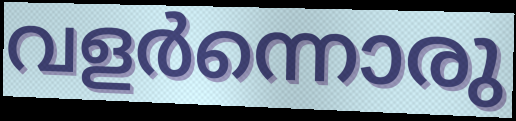
വളർന്നൊരു